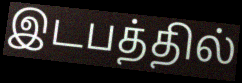
இடபத்தில்